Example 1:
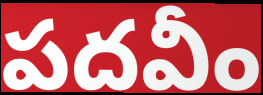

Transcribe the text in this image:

పదవీం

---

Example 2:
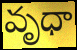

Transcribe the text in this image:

వృధా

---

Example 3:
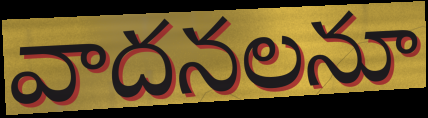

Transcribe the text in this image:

వాదనలనూ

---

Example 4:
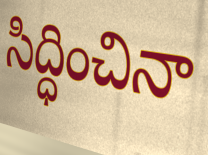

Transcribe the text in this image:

సిద్ధించినా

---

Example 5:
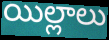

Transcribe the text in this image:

యిల్లాలు